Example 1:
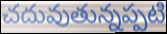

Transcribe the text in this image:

చదువుతున్నప్పటి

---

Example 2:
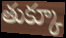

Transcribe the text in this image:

తుక్కూ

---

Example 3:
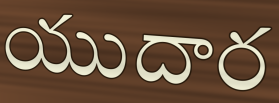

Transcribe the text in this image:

యుదార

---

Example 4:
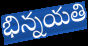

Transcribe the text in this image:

భిన్నయతి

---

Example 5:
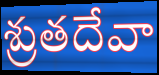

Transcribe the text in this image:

శ్రుతదేవా